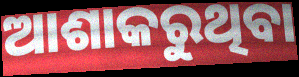
ଆଶାକରୁଥିବା